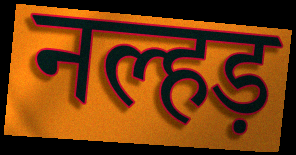
नल्हड़